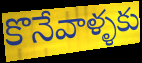
కొనేవాళ్ళకు